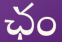
ఛం